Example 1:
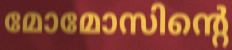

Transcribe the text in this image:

മോമോസിന്റെ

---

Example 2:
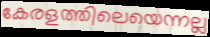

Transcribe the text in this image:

കേരളത്തിലെയെന്നല്ല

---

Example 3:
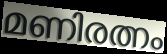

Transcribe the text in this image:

മണിരത്നം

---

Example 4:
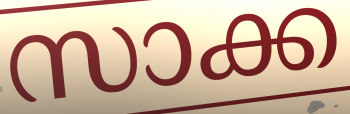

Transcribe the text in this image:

സാക്ക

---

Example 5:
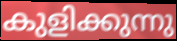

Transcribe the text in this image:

കുളിക്കുന്നു